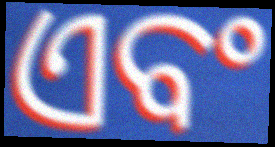
ଏବଂ